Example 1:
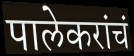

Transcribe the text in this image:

पालेकरांचं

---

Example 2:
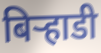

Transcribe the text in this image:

बिर्‍हाडी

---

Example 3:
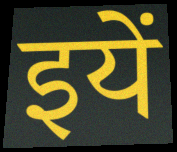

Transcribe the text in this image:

इयें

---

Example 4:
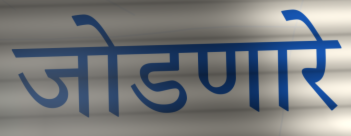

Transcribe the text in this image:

जोडणारे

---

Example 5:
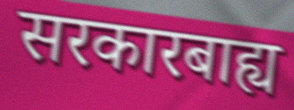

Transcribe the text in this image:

सरकारबाह्य